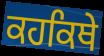
ਕਹਕਿਥੇ